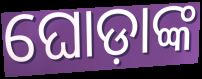
ଘୋଡ଼ାଙ୍କ